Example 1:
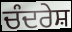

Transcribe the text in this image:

ਚੰਦਰੇਸ਼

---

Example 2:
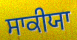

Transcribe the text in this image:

ਸਾਕੀਯਾ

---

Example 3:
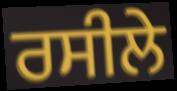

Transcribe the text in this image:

ਰਸੀਲੇ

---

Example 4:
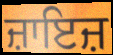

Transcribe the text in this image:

ਜ਼ਾਇਜ਼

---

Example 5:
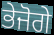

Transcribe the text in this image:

ਭੇਜੋਗੇ